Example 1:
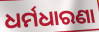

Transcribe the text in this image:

ଧର୍ମଧାରଣା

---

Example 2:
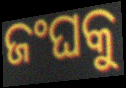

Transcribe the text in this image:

ଜଂଘକୁ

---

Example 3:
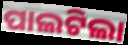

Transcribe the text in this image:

ପାଲଟିଲା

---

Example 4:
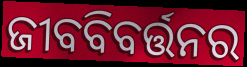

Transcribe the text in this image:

ଜୀବବିବର୍ତ୍ତନର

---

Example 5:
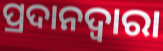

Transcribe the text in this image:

ପ୍ରଦାନଦ୍ୱାରା